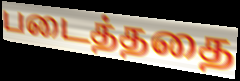
படைத்ததை